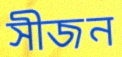
সীজন